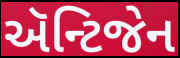
ઍન્ટિજેન